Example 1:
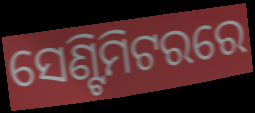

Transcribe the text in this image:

ସେଣ୍ଟିମିଟରରେ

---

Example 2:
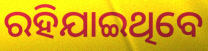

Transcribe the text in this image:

ରହିଯାଇଥିବେ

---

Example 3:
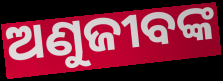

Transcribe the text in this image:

ଅଣୁଜୀବଙ୍କ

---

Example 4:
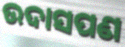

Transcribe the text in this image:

ଉଦାସପଣ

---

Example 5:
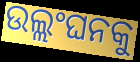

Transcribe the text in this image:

ଉଲ୍ଲଂଘନକୁ